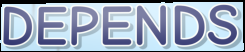
DEPENDS